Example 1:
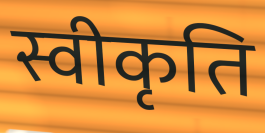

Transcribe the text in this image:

स्‍वीकृति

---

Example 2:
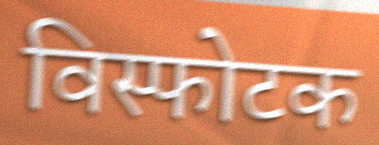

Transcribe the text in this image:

विस्फोटक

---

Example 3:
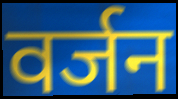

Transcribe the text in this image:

वर्जन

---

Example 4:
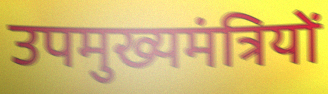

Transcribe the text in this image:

उपमुख्यमंत्रियों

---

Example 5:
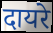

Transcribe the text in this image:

दायरे